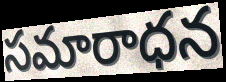
సమారాధన